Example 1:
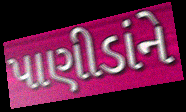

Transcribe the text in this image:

પાણીડાંને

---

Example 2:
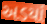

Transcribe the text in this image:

અડયાં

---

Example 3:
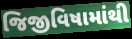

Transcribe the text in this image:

જિજીવિષામાંથી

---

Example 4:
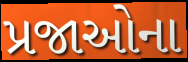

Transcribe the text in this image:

પ્રજાઓના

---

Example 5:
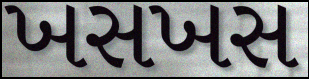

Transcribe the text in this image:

ખસખસ